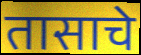
तासाचे